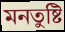
মনতুষ্টি